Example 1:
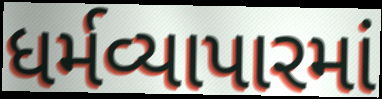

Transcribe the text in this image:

ધર્મવ્યાપારમાં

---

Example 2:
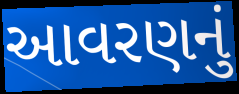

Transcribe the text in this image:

આવરણનું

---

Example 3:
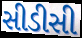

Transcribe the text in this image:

સીડીસી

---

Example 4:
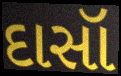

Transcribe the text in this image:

દાસૉ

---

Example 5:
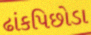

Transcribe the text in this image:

ઢાંકપિછોડા